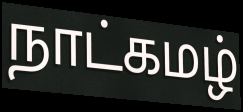
நாட்கமழ்